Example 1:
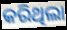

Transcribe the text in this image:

କରିଥିଲା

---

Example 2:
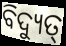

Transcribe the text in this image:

ବିଦ୍ୟୁତ୍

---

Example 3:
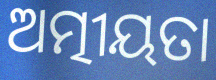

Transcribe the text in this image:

ଅତ୍ମୀୟତା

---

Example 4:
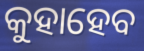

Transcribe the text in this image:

କୁହାହେବ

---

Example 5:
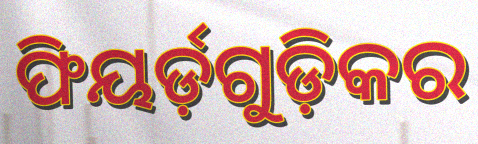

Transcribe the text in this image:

ଫିୟର୍ଡ଼ଗୁଡ଼ିକର